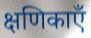
क्षणिकाएँ